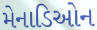
મેનાડિઓન